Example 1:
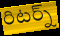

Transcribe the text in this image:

రిటర్న్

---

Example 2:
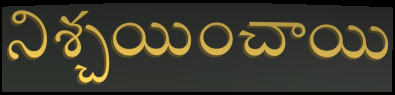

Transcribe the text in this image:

నిశ్చయించాయి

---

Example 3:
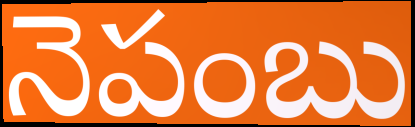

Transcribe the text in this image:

నెపంబు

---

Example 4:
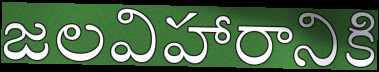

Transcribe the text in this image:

జలవిహారానికి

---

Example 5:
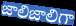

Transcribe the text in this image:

జాలిజాలిగా